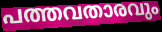
പത്തവതാരവും